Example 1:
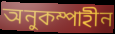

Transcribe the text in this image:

অনুকম্পাহীন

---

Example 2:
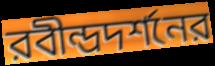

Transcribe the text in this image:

রবীন্দ্রদর্শনের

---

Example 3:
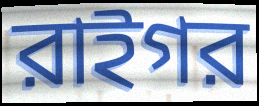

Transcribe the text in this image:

রাইগর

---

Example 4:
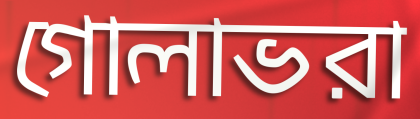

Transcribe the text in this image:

গোলাভরা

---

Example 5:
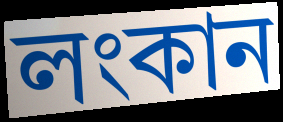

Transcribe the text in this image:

লংকান